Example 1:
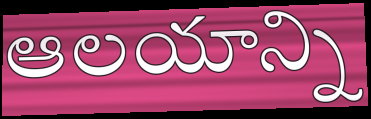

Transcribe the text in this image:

ఆలయాన్ని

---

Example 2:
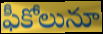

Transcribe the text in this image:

ఫీకోలునూ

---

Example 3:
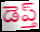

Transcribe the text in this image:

డెప్త్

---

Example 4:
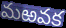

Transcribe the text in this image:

మఱవక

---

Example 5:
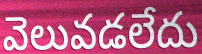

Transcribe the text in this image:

వెలువడలేదు